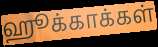
ஹூக்காக்கள்